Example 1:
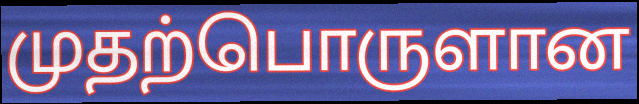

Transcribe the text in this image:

முதற்பொருளான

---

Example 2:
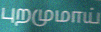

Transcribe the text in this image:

புறமுமாய்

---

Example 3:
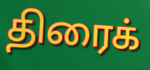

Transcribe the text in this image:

திரைக்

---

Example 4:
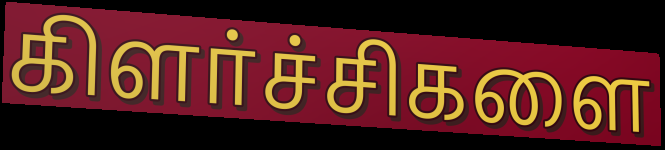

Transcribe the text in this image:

கிளர்ச்சிகளை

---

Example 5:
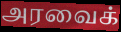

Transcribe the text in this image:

அரவைக்